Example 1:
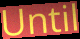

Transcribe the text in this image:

Until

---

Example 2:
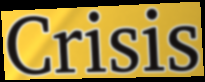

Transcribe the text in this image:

Crisis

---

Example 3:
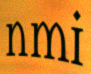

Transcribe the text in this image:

nmi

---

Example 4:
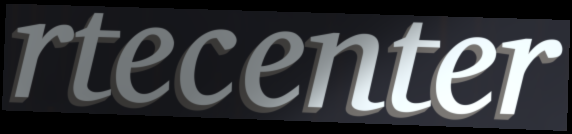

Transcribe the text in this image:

rtecenter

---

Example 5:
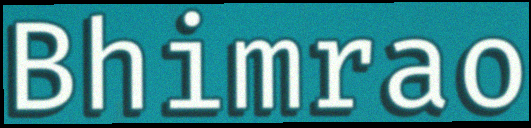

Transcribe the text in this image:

Bhimrao